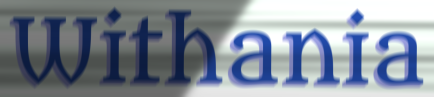
Withania